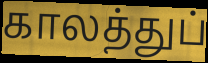
காலத்துப்